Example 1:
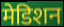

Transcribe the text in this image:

मेडिशन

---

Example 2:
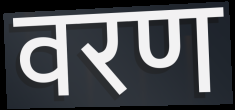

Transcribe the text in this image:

वरण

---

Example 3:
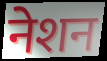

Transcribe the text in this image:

नेशन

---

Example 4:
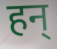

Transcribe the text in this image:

हन्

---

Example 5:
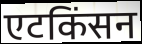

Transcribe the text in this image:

एटकिंसन